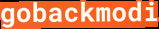
gobackmodi